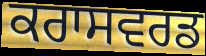
ਕਰਾਸਵਰਡ